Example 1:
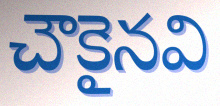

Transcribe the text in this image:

చౌకైనవి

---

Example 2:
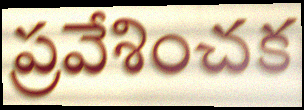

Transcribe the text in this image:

ప్రవేశించక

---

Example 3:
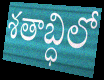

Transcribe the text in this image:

శతాబ్ధిలో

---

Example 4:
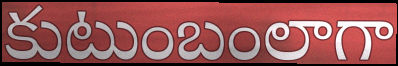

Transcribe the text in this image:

కుటుంబంలాగా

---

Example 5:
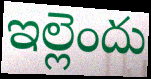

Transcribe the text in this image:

ఇల్లెందు